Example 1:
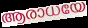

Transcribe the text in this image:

ആരാധയേ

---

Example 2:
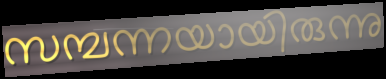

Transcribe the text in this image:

സമ്പന്നയായിരുന്നു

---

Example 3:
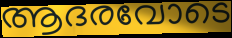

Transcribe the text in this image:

ആദരവോടെ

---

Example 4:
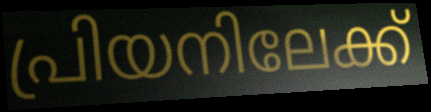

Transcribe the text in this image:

പ്രിയനിലേക്ക്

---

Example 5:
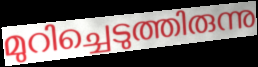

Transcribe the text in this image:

മുറിച്ചെടുത്തിരുന്നു